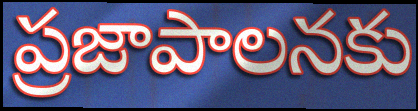
ప్రజాపాలనకు